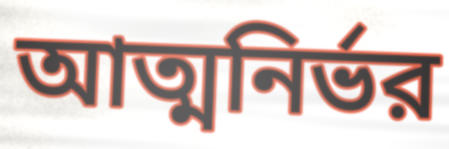
আত্মনির্ভর